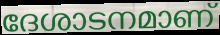
ദേശാടനമാണ്